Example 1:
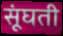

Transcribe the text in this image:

सूंघती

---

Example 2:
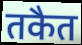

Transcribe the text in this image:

तकैत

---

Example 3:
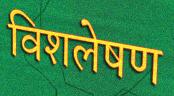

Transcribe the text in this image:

विशलेषण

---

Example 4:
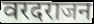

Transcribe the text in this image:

वरदराजन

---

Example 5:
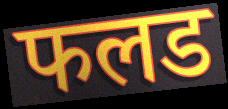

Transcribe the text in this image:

फलड